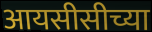
आयसीसीच्या